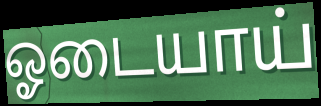
ஓடையாய்